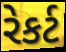
રેકર્ટ